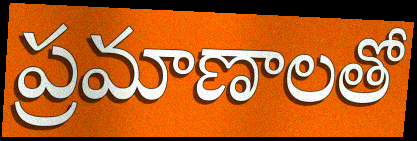
ప్రమాణాలతో